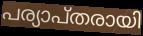
പര്യാപ്തരായി